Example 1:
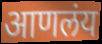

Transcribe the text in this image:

आणलंय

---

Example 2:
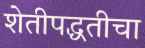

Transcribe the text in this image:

शेतीपद्धतीचा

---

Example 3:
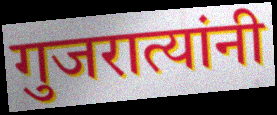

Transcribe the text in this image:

गुजरात्यांनी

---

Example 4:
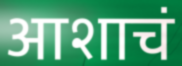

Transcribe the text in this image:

आशाचं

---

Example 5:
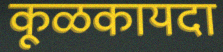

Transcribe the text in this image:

कूळकायदा